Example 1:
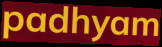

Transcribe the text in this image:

padhyam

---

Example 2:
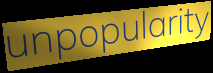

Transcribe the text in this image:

unpopularity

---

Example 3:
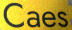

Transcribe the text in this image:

Caes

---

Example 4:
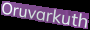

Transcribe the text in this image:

Oruvarkuth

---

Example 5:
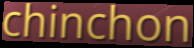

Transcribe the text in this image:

chinchon